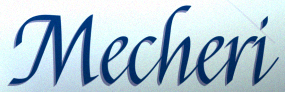
Mecheri